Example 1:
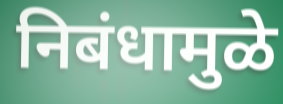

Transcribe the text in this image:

निबंधामुळे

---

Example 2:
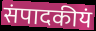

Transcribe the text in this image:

संपादकीयं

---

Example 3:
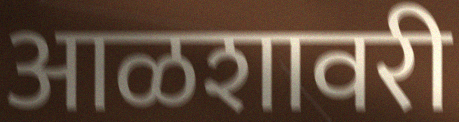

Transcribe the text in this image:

आळशावरी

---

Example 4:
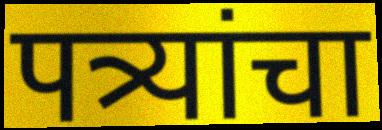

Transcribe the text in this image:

पत्र्यांचा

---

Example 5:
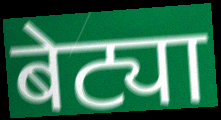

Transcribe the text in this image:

बेट्या